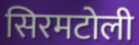
सिरमटोली